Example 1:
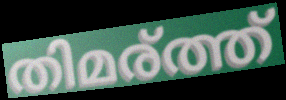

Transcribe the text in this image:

തിമര്ത്ത്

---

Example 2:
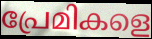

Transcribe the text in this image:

പ്രേമികളെ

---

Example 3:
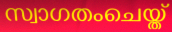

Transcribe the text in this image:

സ്വാഗതംചെയ്ത്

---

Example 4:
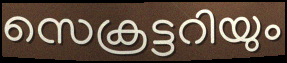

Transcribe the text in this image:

സെക്രട്ടറിയും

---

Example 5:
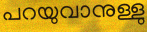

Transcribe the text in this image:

പറയുവാനുള്ളു